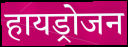
हायड्रोजन